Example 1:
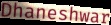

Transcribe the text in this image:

Dhaneshwar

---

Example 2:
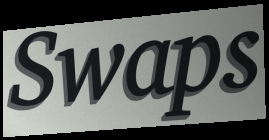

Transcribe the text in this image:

Swaps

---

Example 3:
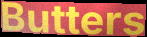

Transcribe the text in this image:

Butters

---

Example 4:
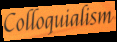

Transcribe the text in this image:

Colloquialism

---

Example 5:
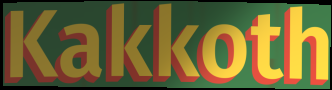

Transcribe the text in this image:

Kakkoth